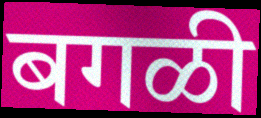
बगळी